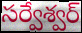
సర్వేశ్వర్